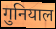
गुनियाल